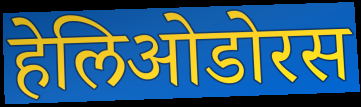
हेलिओडोरस